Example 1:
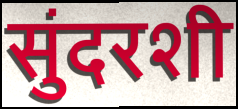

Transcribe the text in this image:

सुंदरशी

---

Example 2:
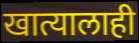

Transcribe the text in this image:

खात्यालाही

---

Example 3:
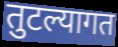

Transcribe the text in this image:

तुटल्यागत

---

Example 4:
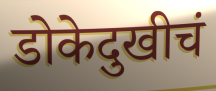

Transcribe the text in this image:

डोकेदुखीचं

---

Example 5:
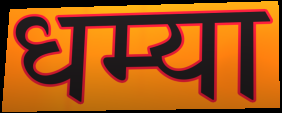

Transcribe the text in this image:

धम्या